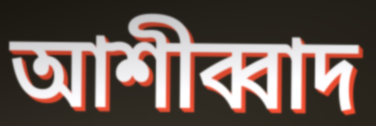
আশীব্বাদ